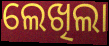
ଲେଖିଲା